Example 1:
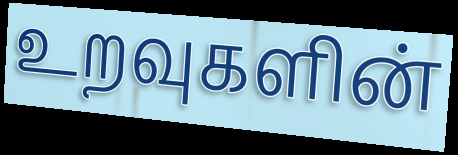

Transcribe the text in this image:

உறவுகளின்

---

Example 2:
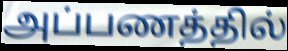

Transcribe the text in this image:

அப்பணத்தில்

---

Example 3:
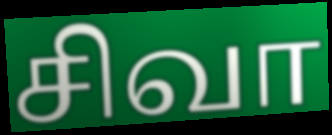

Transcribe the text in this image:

சிவா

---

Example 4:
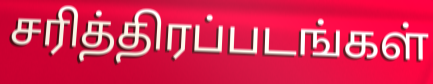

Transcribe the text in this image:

சரித்திரப்படங்கள்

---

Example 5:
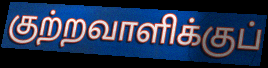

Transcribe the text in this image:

குற்றவாளிக்குப்